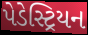
પેડેસ્ટ્રિયન